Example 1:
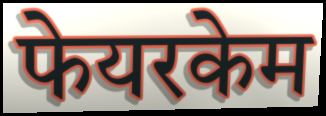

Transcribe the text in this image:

फेयरकेम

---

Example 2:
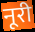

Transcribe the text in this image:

नूरी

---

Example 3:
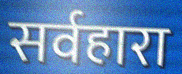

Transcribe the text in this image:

सर्वहारा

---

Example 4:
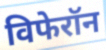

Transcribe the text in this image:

विफेरॉन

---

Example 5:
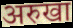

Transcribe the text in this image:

अरुखा